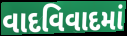
વાદવિવાદમાં